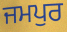
ਜਮਪੁਰ